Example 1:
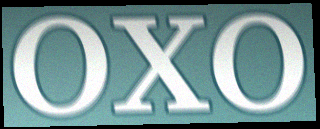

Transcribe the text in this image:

oxo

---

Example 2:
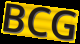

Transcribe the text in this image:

BCG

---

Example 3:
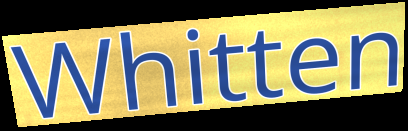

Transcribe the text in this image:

Whitten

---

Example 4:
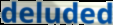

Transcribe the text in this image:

deluded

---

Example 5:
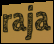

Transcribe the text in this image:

raja